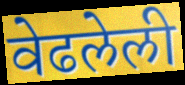
वेढलेली